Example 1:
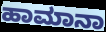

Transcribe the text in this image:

ಹಾಮಾನಾ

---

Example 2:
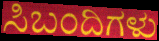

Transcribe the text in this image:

ಸಿಬಂದಿಗಳು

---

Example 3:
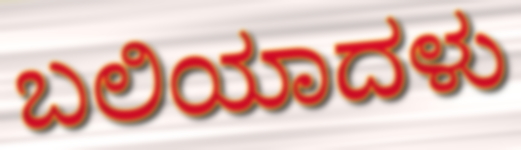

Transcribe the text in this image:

ಬಲಿಯಾದಳು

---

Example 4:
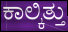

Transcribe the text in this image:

ಕಾಲ್ಕಿತ್ತು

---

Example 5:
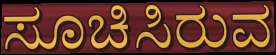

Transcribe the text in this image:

ಸೂಚಿಸಿರುವ